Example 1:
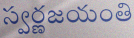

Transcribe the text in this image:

స్వర్ణజయంతి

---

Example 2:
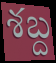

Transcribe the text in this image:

శబ్ద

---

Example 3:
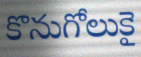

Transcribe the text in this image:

కొనుగోలుకై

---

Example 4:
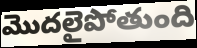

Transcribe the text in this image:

మొదలైపోతుంది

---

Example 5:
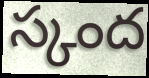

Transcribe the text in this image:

స్కంద